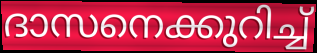
ദാസനെക്കുറിച്ച്